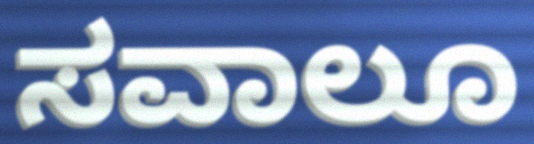
ಸವಾಲೂ